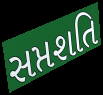
સપ્તશતિ